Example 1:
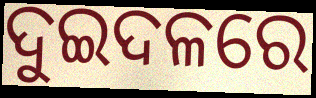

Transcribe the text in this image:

ଦୁଇଦଳରେ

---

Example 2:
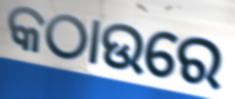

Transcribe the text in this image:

କଠାଉରେ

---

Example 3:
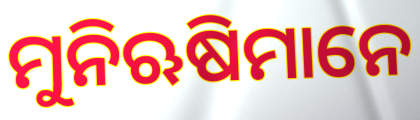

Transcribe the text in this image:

ମୁନିଋଷିମାନେ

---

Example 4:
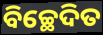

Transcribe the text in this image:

ବିଚ୍ଛେଦିତ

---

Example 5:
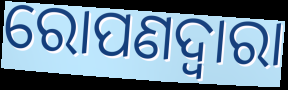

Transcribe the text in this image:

ରୋପଣଦ୍ୱାରା